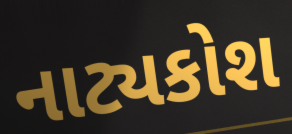
નાટ્યકોશ